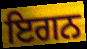
ਇਗਨ